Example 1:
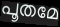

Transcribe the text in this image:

പൂതമേ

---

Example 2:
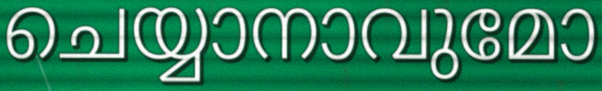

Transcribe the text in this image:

ചെയ്യാനാവുമോ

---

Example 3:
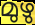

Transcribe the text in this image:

മുഴു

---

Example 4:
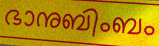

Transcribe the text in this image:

ഭാനുബിംബം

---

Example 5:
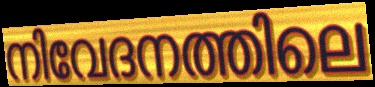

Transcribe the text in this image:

നിവേദനത്തിലെ